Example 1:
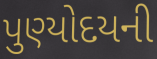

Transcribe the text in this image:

પુણ્યોદયની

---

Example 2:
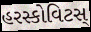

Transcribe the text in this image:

હરસ્કોવિટસ્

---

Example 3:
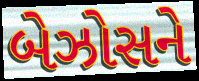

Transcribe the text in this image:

બેઝોસને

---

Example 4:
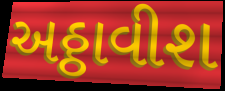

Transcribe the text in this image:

અઠ્ઠાવીશ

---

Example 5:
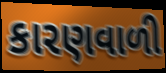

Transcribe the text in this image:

કારણવાળી